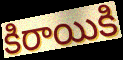
కిరాయికి